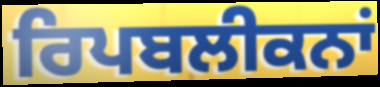
ਰਿਪਬਲੀਕਨਾਂ